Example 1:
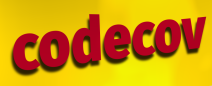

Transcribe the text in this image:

codecov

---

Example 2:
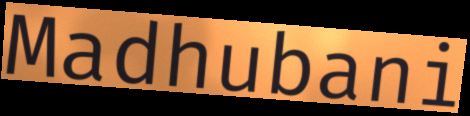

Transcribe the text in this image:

Madhubani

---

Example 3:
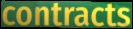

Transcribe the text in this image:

contracts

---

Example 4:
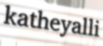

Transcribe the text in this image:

katheyalli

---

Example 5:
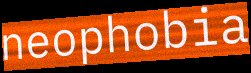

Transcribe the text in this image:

neophobia